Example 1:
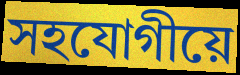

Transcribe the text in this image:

সহযোগীয়ে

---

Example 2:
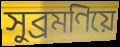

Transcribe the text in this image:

সুব্ৰমণিয়ে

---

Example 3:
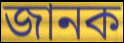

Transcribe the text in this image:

জানক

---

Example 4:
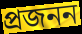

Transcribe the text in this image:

প্ৰজনন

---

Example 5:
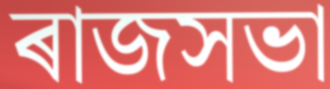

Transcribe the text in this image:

ৰাজসভা